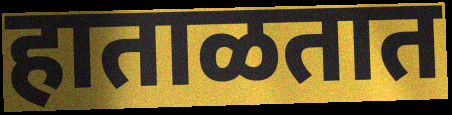
हाताळतात